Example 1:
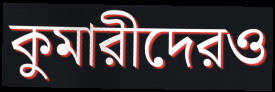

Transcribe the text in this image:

কুমারীদেরও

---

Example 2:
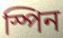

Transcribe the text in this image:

স্পিন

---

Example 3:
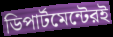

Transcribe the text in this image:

ডিপার্টমেন্টেরই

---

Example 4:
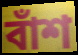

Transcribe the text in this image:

বাঁশ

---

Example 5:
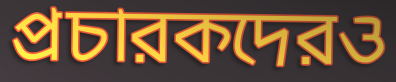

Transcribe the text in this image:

প্রচারকদেরও